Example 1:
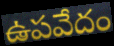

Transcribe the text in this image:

ఉపవేదం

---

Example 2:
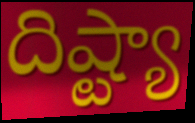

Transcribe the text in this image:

దిష్ట్యా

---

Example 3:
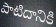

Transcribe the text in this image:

పాటిదానికి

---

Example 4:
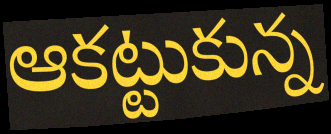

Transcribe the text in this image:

ఆకట్టుకున్న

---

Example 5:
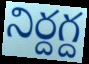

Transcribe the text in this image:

నిర్దగ్ద